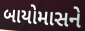
બાયોમાસને